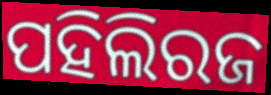
ପହିଲିରଜ